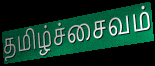
தமிழ்ச்சைவம்